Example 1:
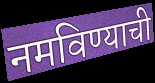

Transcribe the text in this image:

नमविण्याची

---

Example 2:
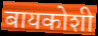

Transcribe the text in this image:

बायकोशी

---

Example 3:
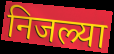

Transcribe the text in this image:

निजल्या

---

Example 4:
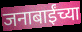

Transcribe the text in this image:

जनाबाईंच्या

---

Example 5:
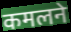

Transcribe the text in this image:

कमलने